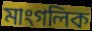
মাংগলিক